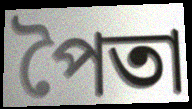
পৈতা